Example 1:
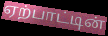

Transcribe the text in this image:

ஏற்பாட்டின்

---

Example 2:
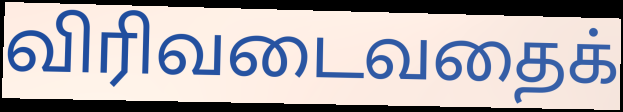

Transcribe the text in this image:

விரிவடைவதைக்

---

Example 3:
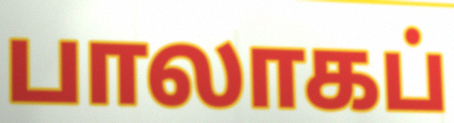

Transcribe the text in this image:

பாலாகப்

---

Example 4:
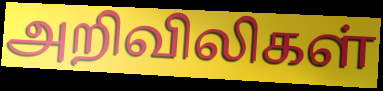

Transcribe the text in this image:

அறிவிலிகள்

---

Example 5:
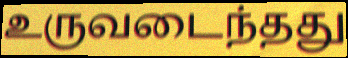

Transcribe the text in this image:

உருவடைந்தது